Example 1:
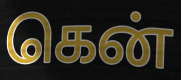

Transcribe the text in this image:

கென்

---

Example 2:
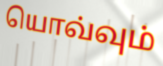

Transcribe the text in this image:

யொவ்வும்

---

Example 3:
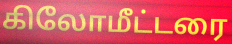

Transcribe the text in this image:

கிலோமீட்டரை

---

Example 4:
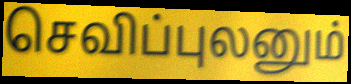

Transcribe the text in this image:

செவிப்புலனும்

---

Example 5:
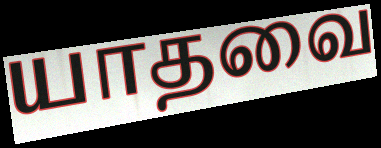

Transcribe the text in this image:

யாதவை